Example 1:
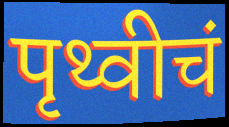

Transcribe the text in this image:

पृथ्वीचं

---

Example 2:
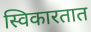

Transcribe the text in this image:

स्विकारतात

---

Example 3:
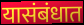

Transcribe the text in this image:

यासंबंधात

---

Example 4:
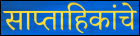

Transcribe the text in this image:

साप्ताहिकांचे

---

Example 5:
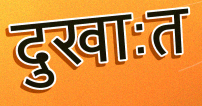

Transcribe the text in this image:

दुखाःत